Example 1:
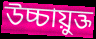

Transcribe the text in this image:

উচ্চায়ুক্ত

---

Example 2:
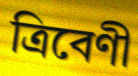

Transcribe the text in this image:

ত্ৰিবেণী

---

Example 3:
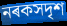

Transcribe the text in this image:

নৰকসদৃশ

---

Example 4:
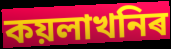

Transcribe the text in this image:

কয়লাখনিৰ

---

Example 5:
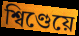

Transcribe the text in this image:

শ্বিণ্ডেয়ে